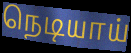
நெடியாய்